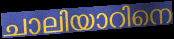
ചാലിയാറിനെ